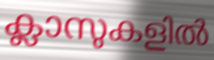
ക്ലാസുകളിൽ